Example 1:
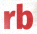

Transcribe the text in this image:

rb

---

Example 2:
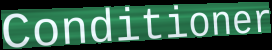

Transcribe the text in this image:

Conditioner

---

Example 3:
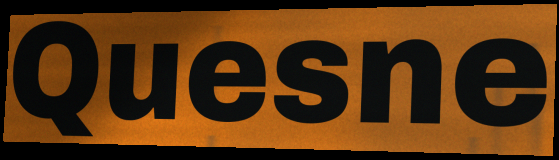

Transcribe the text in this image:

Quesne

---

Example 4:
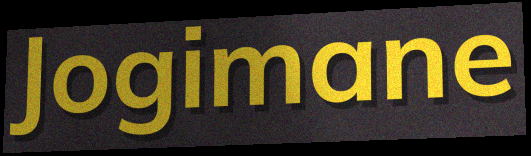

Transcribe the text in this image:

Jogimane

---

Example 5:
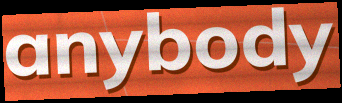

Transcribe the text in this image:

anybody